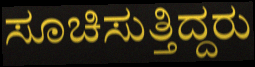
ಸೂಚಿಸುತ್ತಿದ್ದರು